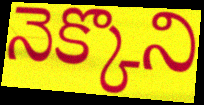
నెక్కొని